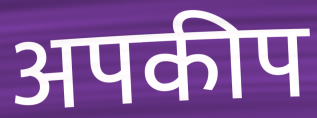
अपकीप